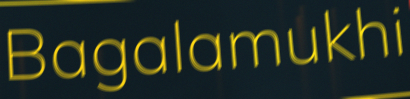
Bagalamukhi